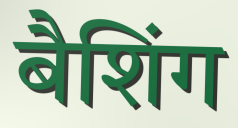
बैशिंग